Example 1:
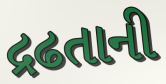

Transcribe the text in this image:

દ્રઢતાની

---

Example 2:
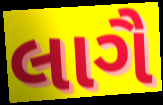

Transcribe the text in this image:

લાગૈ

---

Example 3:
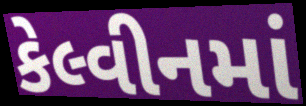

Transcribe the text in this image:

કેલ્વીનમાં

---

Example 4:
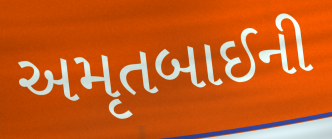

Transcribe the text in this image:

અમૃતબાઈની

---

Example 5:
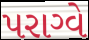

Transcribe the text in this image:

પરાગ્વે